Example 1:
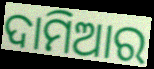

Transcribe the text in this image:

ଦାମିଆର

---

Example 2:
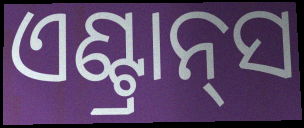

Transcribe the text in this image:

ଏଣ୍ଟ୍ରାନ୍‍ସ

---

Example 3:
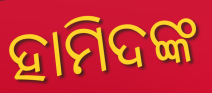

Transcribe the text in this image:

ହାମିଦଙ୍କ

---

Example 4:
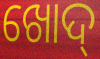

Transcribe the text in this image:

ଖୋଦ୍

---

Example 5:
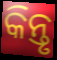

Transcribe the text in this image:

କିନ୍ତୃ